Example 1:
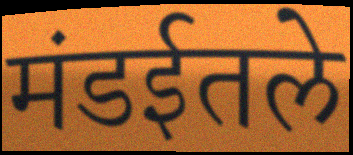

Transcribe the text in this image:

मंडईतले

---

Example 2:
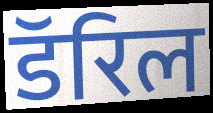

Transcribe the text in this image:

डॅरिल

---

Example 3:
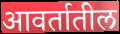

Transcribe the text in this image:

आवर्तातील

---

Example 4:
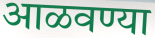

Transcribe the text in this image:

आळवण्या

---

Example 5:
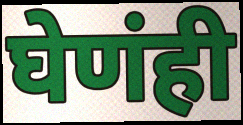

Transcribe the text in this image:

घेणंही